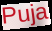
Puja